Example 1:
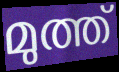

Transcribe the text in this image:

മുത്ത്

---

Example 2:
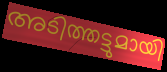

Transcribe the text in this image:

അടിത്തട്ടുമായി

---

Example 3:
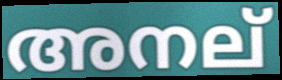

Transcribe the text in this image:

അനല്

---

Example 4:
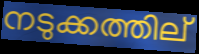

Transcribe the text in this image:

നടുക്കത്തില്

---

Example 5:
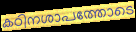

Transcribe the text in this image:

കഠിനശാപത്തോടെ